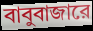
বাবুবাজারে